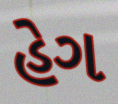
હેગ